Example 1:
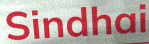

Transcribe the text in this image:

Sindhai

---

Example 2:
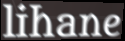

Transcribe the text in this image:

lihane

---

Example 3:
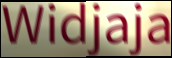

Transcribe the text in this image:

Widjaja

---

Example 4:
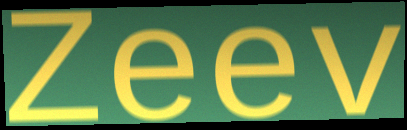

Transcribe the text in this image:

Zeev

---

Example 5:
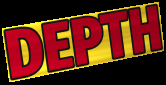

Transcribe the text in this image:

DEPTH